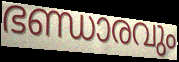
ഭണ്ഡാരവും